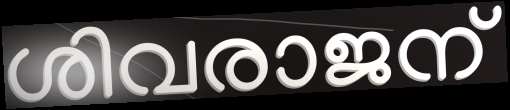
ശിവരാജന്